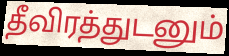
தீவிரத்துடனும்